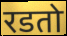
रडतो